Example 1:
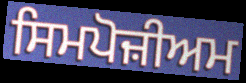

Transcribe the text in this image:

ਸਿਮਪੋਜ਼ੀਅਮ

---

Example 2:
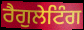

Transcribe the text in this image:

ਰੈਗੁਲੇਟਿੰਗ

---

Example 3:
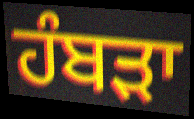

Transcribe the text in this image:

ਹੰਬਡ਼ਾ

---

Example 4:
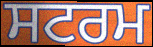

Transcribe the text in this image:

ਸਟਰਮ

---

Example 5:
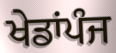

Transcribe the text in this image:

ਖੇਡਾਂਪੰਜ